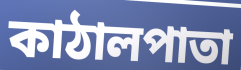
কাঠালপাতা